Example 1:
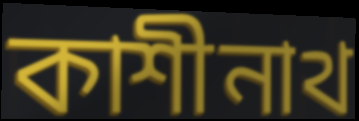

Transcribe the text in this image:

কাশীনাথ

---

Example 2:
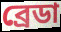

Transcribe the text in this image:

ব্রেডা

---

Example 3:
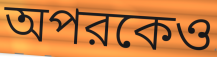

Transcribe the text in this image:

অপরকেও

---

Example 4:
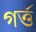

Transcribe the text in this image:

গর্ত্ত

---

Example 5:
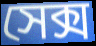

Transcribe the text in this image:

সেক্স